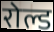
रोल्ड